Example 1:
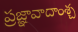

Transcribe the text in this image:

ప్రజ్ఞావాదాంశ్చ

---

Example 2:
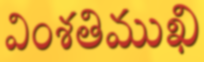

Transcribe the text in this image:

వింశతిముఖి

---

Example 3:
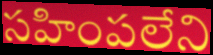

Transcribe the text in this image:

సహింపలేని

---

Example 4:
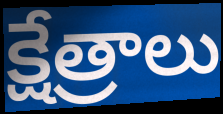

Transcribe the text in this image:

క్షేత్రాలు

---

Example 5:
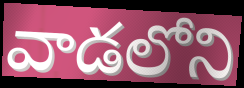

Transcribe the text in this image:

వాడలోని